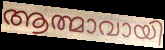
ആത്മാവായി